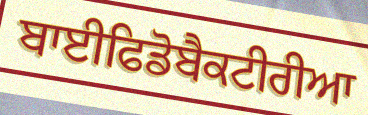
ਬਾਈਫਿਡੋਬੈਕਟੀਰੀਆ